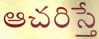
ఆచరిస్తే